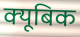
क्‍यूबिक